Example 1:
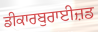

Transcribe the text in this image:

ਡੀਕਾਰਬੁਰਾਈਜ਼ਡ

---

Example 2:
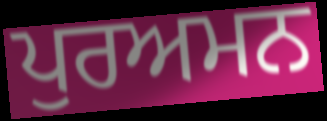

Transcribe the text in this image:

ਪੁਰਅਮਨ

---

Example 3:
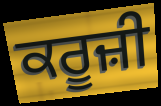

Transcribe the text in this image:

ਕਰੂਜ਼ੀ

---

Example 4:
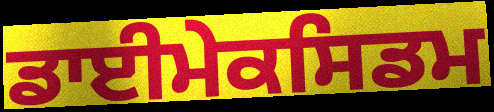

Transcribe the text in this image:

ਡਾਈਮੇਕਸਿਡਮ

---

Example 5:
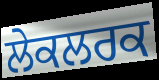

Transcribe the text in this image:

ਲੇਕਲਰਕ